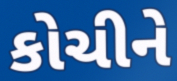
કોચીને